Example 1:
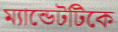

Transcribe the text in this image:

ম্যান্ডেটটিকে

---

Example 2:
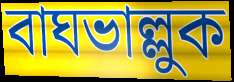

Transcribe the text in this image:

বাঘভাল্লুক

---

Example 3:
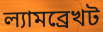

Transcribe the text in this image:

ল্যামব্রেখট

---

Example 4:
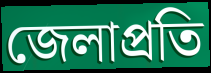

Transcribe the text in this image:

জেলাপ্রতি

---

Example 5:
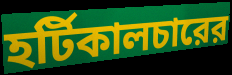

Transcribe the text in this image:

হর্টিকালচারের